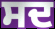
ਸਦ